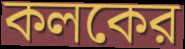
কলকের